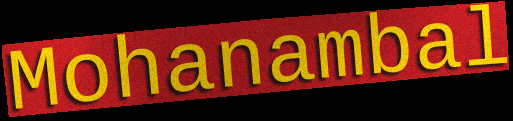
Mohanambal